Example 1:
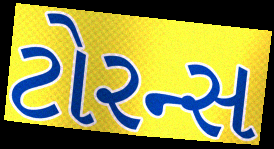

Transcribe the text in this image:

ટોરન્સ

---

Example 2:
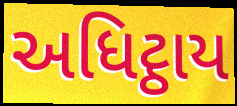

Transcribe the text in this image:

અધિટ્ઠાય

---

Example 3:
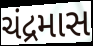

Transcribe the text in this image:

ચંદ્રમાસ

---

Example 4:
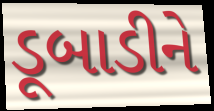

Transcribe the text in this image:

ડૂબાડીને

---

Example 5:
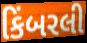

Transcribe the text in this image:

કિંબરલી